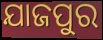
ଯାଜପୁର